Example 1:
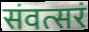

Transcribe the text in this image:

संवत्सरं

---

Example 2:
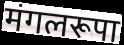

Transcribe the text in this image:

मंगलरूपा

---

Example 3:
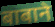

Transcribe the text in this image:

बाबाने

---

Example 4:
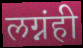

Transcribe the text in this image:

लग्नंही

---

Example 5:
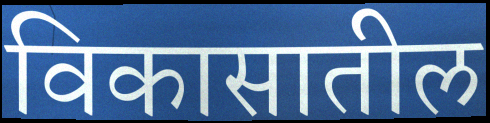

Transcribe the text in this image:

विकासातील